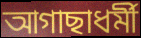
আগাছাধর্মী